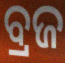
ବ୍ରଜ